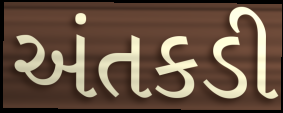
અંતકડી